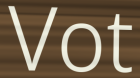
Vot